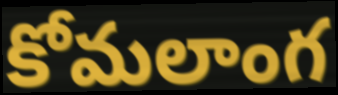
కోమలాంగ